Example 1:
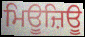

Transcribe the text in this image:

ਮਿਊਜ਼ਿਊ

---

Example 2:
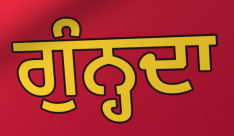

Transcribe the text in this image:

ਗੁੰਨ੍ਹਦਾ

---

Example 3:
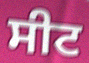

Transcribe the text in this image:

ਸੀਟ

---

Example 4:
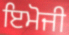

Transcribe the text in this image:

ਇਮੋਜੀ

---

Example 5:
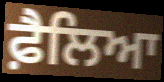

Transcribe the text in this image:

ਫ਼ੈਲਿਆ